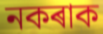
নকৰাক